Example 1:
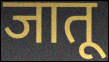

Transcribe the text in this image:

जातू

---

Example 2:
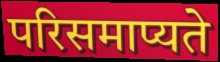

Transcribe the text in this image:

परिसमाप्यते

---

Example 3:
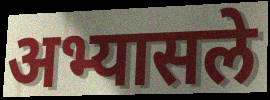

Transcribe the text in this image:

अभ्यासले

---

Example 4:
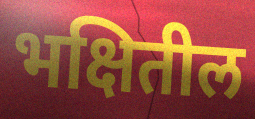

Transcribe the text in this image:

भक्षितील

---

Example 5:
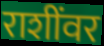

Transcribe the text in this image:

राशींवर